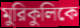
মুরিকুলিকে